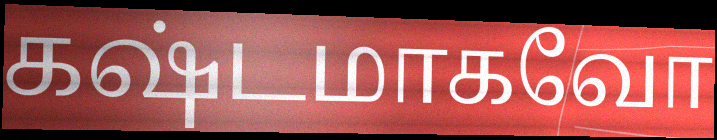
கஷ்டமாகவோ